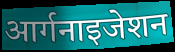
आर्गनाइजेशन